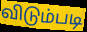
விடும்படி